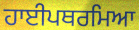
ਹਾਈਪਥਰਮਿਆ